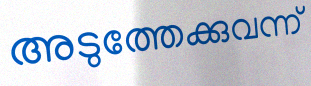
അടുത്തേക്കുവന്ന്